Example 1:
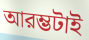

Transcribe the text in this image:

আরম্ভটাই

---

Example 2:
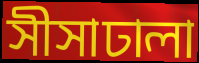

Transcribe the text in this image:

সীসাঢালা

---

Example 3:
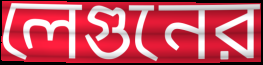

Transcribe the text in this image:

লেগুনের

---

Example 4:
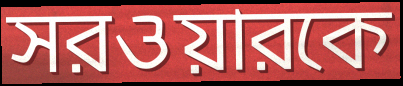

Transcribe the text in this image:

সরওয়ারকে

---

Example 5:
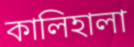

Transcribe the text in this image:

কালিহালা